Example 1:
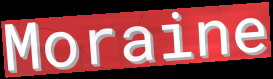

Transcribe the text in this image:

Moraine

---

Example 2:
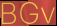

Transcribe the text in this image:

BGv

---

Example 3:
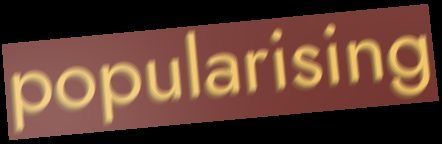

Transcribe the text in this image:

popularising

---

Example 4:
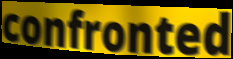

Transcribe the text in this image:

confronted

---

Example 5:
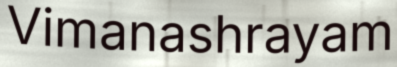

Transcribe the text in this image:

Vimanashrayam